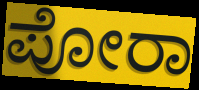
ಪೋರಾ